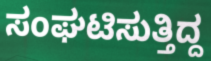
ಸಂಘಟಿಸುತ್ತಿದ್ದ